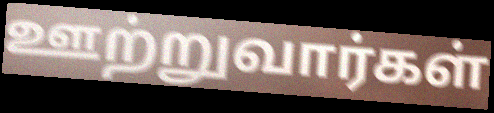
ஊற்றுவார்கள்